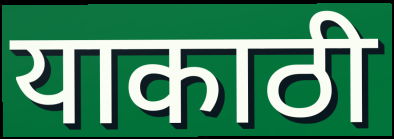
याकाठी